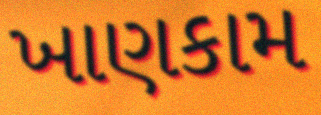
ખાણકામ